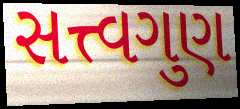
સત્ત્વગુણ